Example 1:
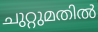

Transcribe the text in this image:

ചുറ്റുമതിൽ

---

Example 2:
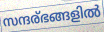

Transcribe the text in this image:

സന്ദര്ഭങ്ങളിൽ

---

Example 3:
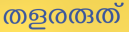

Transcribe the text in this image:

തളരരുത്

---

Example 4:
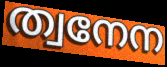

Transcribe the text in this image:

ത്വനേന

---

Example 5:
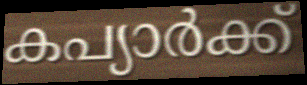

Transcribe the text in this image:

കപ്യാർക്ക്